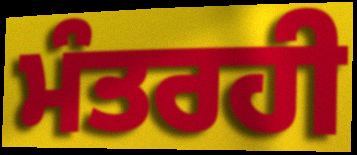
ਮੰਤਰਹੀ